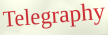
Telegraphy